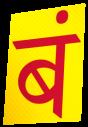
बं